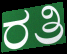
ರತಿ